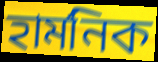
হার্মনিক